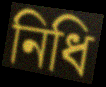
নিধি